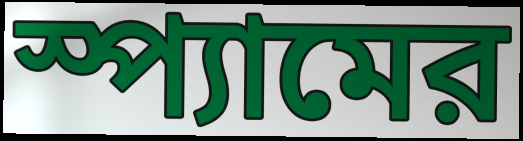
স্প্যামের